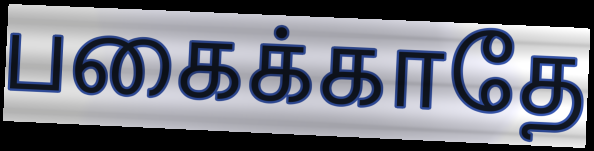
பகைக்காதே